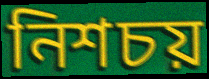
নিশচয়